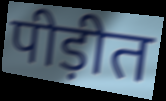
पीड़ीत